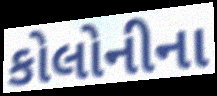
કોલોનીના